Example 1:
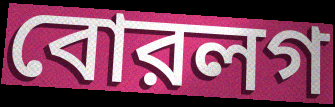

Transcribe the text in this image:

বোরলগ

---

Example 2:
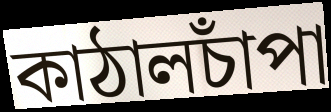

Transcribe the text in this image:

কাঠালচাঁপা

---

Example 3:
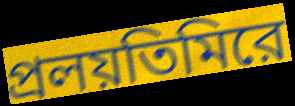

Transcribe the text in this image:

প্রলয়তিমিরে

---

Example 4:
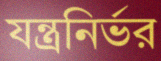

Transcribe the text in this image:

যন্ত্রনির্ভর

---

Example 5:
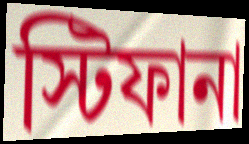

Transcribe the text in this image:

স্টিফানা